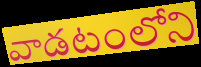
వాడటంలోని